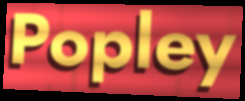
Popley